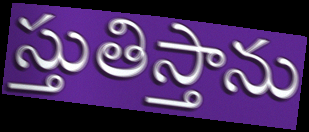
స్తుతిస్తాను